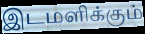
இடமளிக்கும்